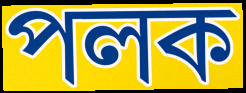
পলক